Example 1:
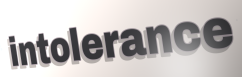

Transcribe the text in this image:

intolerance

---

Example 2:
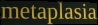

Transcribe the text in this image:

metaplasia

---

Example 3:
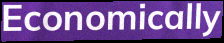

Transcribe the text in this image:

Economically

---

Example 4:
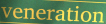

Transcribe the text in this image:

veneration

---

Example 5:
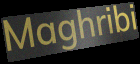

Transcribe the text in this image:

Maghribi